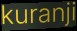
kuranji